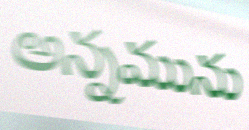
అన్నమును